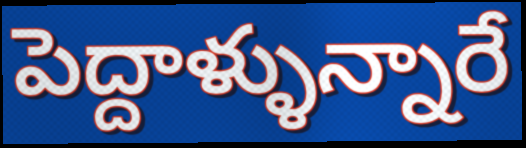
పెద్దాళ్ళున్నారే